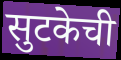
सुटकेची